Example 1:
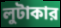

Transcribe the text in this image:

লুটাকার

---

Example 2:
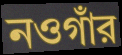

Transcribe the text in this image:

নওগাঁর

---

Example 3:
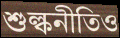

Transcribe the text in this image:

শুল্কনীতিও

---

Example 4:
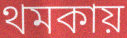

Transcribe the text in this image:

থমকায়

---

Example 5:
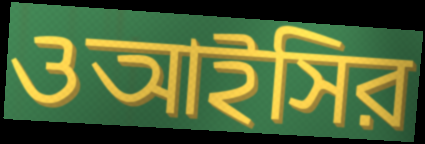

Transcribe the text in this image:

ওআইসির